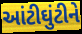
આંટીઘુંટીને